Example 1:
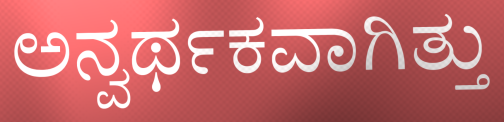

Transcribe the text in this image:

ಅನ್ವರ್ಥಕವಾಗಿತ್ತು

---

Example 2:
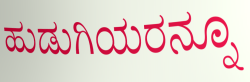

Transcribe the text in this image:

ಹುಡುಗಿಯರನ್ನೂ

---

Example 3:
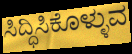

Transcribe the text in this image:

ಸಿದ್ಧಿಸಿಕೊಳ್ಳುವ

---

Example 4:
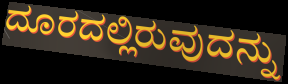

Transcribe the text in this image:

ದೂರದಲ್ಲಿರುವುದನ್ನು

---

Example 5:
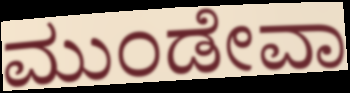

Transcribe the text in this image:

ಮುಂಡೇವಾ